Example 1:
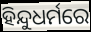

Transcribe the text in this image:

ହିନ୍ଦୁଧର୍ମରେ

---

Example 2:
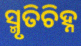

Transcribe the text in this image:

ସ୍ମୃତିଚିହ୍ନ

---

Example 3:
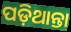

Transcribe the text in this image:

ପଡ଼ିଥାନ୍ତା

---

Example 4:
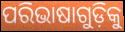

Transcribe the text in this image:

ପରିଭାଷାଗୁଡ଼ିକୁ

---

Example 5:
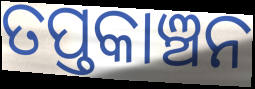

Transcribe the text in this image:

ତପ୍ତକାଞ୍ଚନ